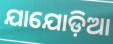
ଯାଯୋଡ଼ିଆ